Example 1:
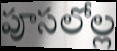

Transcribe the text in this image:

పూసలోల్ల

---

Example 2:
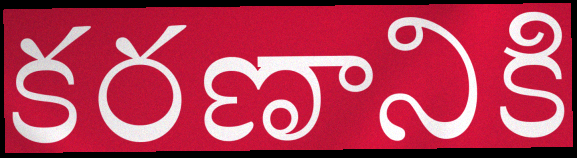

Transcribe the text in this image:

కరణానికి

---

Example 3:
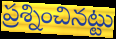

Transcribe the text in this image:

ప్రశ్నించినట్టు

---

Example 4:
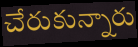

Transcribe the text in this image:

చేరుకున్నారు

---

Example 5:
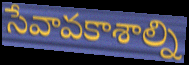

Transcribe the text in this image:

సేవావకాశాల్ని